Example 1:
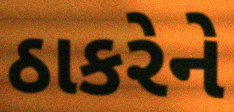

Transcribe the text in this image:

ઠાકરેને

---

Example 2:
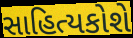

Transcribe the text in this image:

સાહિત્યકોશે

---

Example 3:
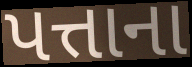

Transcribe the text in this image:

પત્તાના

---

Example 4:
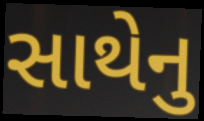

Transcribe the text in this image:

સાથેનુ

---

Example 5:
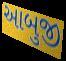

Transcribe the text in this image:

આબુજી